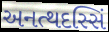
અનત્થદસ્સિં